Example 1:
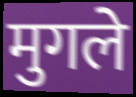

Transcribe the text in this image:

मुगले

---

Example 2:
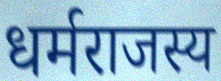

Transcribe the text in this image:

धर्मराजस्य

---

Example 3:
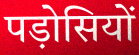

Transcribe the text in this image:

पड़ोसियों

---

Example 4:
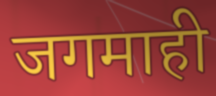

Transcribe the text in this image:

जगमाही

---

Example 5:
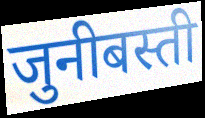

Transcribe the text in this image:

जुनीबस्ती